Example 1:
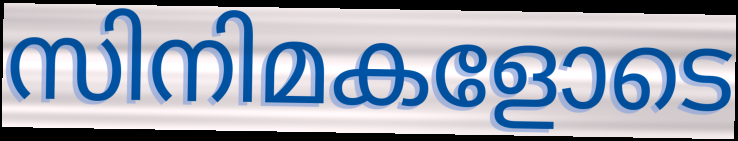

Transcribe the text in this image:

സിനിമകളോടെ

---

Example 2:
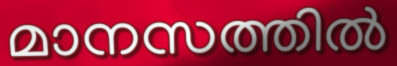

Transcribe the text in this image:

മാനസത്തിൽ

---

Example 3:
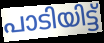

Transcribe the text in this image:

പാടിയിട്ട്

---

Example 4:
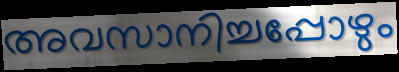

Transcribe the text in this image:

അവസാനിച്ചപ്പോഴും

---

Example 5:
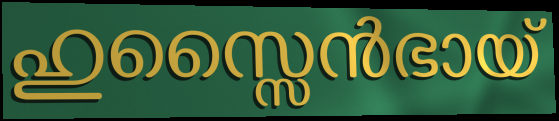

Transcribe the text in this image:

ഹുസ്സൈൻഭായ്